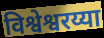
विश्वेश्वरय्या